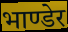
भाण्डेर